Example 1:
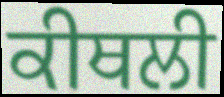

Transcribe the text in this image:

ਕੀਥਲੀ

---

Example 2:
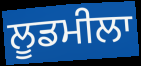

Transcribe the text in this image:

ਲੂਡਮੀਲਾ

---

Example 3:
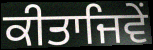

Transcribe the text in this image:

ਕੀਤਾਜਿਵੇਂ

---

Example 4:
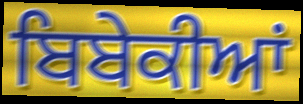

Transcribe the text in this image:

ਬਿਬੇਕੀਆਂ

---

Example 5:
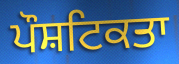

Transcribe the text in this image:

ਪੌਸ਼ਟਿਕਤਾ